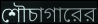
শৌচাগারের